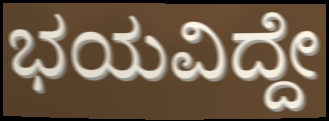
ಭಯವಿದ್ದೇ